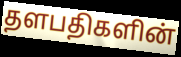
தளபதிகளின்